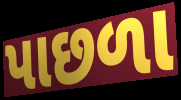
પાછળા